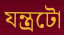
যন্ত্ৰটো